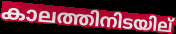
കാലത്തിനിടയില്